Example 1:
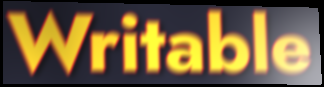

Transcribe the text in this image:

Writable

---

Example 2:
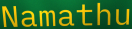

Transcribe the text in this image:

Namathu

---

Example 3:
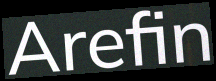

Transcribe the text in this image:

Arefin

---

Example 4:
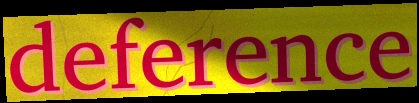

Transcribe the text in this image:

deference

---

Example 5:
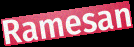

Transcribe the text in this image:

Ramesan